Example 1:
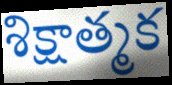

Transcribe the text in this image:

శిక్షాత్మక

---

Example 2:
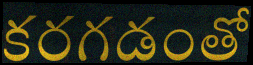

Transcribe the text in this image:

కరగడంతో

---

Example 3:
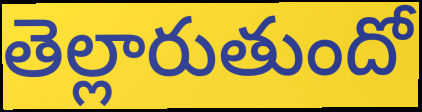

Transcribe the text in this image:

తెల్లారుతుందో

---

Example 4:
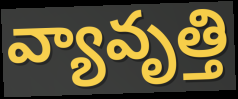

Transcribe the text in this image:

వ్యావృత్తి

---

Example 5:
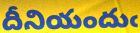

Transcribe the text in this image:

దీనియందుఁ